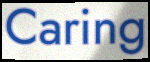
Caring